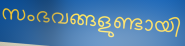
സംഭവങ്ങളുണ്ടായി